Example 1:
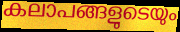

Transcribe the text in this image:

കലാപങ്ങളുടെയും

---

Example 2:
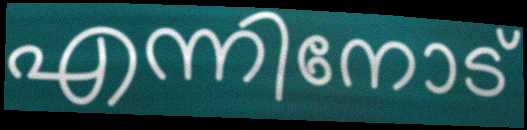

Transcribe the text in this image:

എന്നിനോട്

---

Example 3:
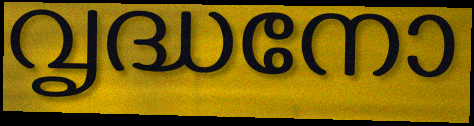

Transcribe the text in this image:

വൃദ്ധനോ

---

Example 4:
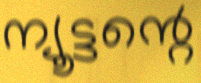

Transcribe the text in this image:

ന്യൂട്ടന്റെ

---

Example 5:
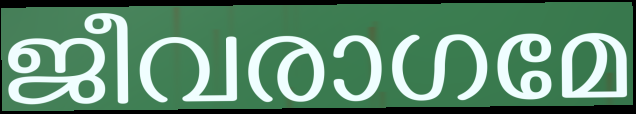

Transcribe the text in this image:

ജീവരാഗമേ